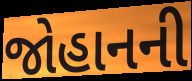
જોહાનની